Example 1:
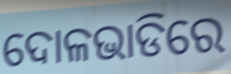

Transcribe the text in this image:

ଦୋଳଭାଡିରେ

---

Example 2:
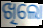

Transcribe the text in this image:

ଖିଲୋ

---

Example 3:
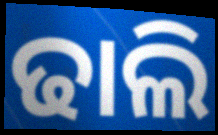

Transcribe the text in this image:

ଢାଲି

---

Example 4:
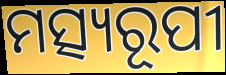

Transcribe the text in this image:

ମତ୍ସ୍ୟରୂପୀ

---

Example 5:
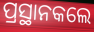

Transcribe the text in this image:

ପ୍ରସ୍ଥାନକଲେ